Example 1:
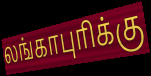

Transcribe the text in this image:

லங்காபுரிக்கு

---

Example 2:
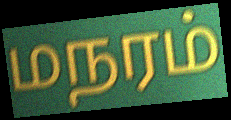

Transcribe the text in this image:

மநரம்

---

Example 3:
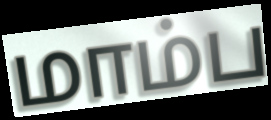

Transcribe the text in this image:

மாம்ப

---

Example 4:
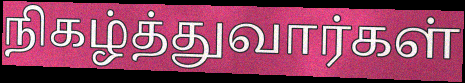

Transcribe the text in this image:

நிகழ்த்துவார்கள்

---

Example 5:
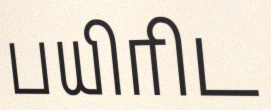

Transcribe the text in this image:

பயிரிட